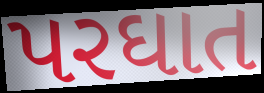
પરઘાત